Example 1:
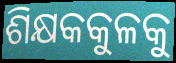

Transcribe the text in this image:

ଶିକ୍ଷକକୁଳକୁ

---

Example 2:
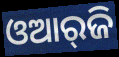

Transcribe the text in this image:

ଓଆର୍‌ଜି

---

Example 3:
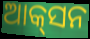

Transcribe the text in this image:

ଆକ୍‌ସନ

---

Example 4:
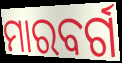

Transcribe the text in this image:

ମାରବର୍ଗ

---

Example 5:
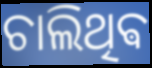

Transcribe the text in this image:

ଚାଲିଥିଵ